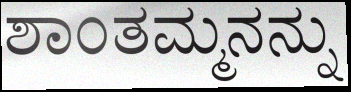
ಶಾಂತಮ್ಮನನ್ನು